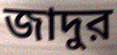
জাদুর